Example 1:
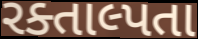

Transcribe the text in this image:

રક્તાલ્પતા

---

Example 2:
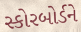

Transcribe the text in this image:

સ્કોરબોર્ડને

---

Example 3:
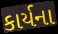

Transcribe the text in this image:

કાર્યના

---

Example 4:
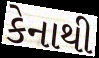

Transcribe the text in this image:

કેનાથી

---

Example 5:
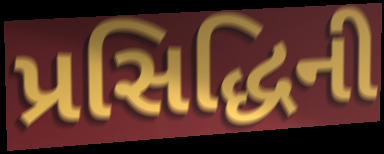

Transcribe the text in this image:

પ્રસિદ્ધિની